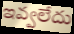
ఇవ్వలేదు